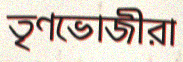
তৃণভোজীরা